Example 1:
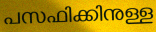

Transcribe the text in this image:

പസഫിക്കിനുള്ള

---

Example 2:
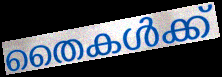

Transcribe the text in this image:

തൈകൾക്ക്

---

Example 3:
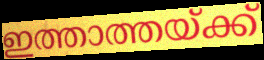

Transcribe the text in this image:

ഇത്താത്തയ്ക്ക്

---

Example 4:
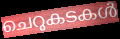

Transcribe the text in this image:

ചെറുകടകൾ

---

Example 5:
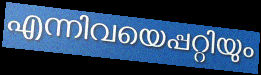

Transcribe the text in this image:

എന്നിവയെപ്പറ്റിയും